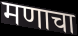
मणाचा